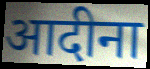
आदीना